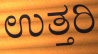
ಉತ್ತರಿ